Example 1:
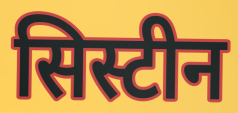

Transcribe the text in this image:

सिस्टीन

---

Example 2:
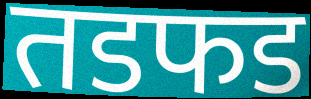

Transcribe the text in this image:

तडफड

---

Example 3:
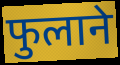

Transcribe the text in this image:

फुलाने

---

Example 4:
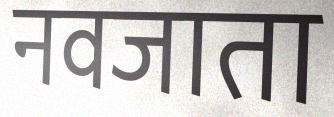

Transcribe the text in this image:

नवजाता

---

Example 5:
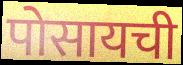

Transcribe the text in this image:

पोसायची